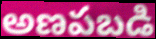
అణపబడి